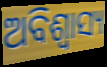
ଅବିଶ୍ଵାସ୍ୟ